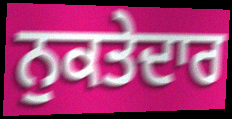
ਨੁਕਤੇਦਾਰ